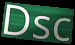
Dsc